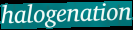
halogenation